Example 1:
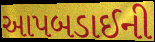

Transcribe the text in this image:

આપબડાઈની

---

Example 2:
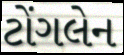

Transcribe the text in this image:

ટોંગલેન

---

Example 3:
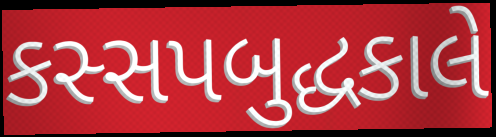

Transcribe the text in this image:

કસ્સપબુદ્ધકાલે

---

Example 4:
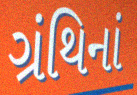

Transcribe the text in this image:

ગ્રંથિનાં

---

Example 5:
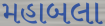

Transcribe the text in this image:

મહાબલા